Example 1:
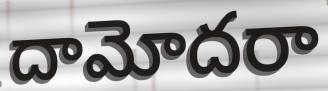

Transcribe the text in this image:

దామోదరా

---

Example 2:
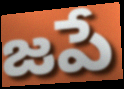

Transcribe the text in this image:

జపే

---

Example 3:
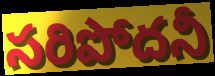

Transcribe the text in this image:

సరిపోదనీ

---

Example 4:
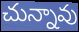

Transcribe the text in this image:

చున్నావు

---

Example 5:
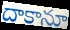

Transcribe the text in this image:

దాకానూ